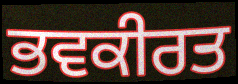
ਭਵਕੀਰਤ